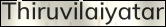
Thiruvilaiyatar